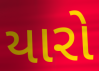
યારો